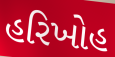
હરિખોહ